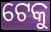
ଟେକୁ